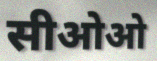
सीओओ